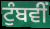
ਟੁੰਬਵੀਂ